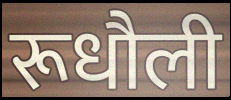
रूधौली